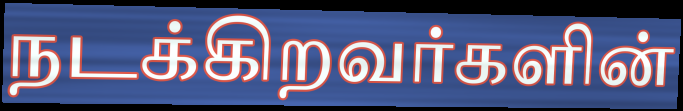
நடக்கிறவர்களின்